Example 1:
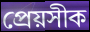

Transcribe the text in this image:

প্ৰেয়সীক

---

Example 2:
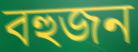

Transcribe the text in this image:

বহুজন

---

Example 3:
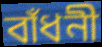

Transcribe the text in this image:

বাঁধনী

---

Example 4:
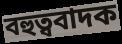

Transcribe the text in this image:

বহুত্ববাদক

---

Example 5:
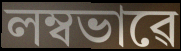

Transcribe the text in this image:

লম্বভাৱে